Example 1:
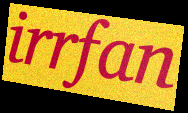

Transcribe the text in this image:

irrfan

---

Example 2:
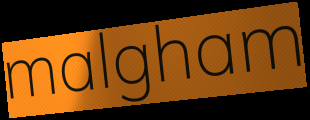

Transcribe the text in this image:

malgham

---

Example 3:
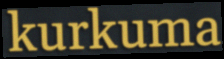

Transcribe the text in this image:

kurkuma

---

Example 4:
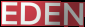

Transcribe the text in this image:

EDEN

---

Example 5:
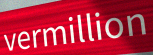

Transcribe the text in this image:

vermillion